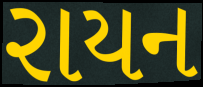
રાયન